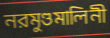
নরমুণ্ডমালিনী